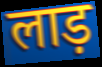
लाड़